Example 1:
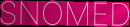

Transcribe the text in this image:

SNOMED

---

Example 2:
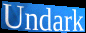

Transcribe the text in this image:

Undark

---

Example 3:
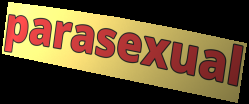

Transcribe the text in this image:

parasexual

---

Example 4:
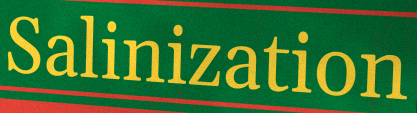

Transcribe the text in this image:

Salinization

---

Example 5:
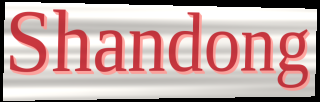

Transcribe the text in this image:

Shandong